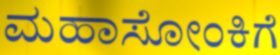
ಮಹಾಸೋಂಕಿಗೆ